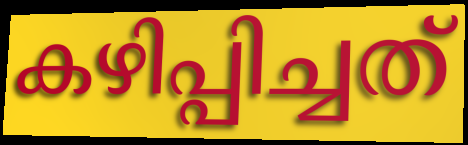
കഴിപ്പിച്ചത്